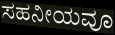
ಸಹನೀಯವೂ